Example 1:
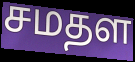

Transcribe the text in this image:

சமதள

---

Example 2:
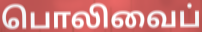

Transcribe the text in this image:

பொலிவைப்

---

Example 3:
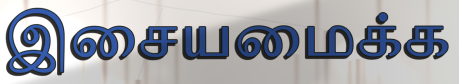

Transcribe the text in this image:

இசையமைக்க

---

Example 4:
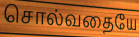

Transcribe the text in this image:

சொல்வதையே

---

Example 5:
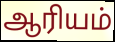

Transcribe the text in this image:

ஆரியம்